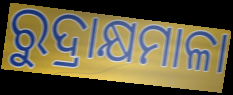
ରୁଦ୍ରାକ୍ଷମାଳା